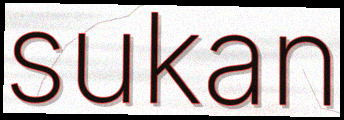
sukan